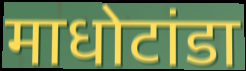
माधोटांडा